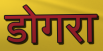
डोगरा